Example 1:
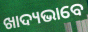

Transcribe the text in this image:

ଖାଦ୍ୟଭାବେ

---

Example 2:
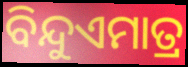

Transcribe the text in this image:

ବିନ୍ଦୁଏମାତ୍ର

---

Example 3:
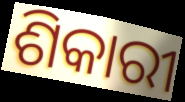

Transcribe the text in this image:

ଶିକାରୀ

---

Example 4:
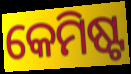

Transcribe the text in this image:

କେମିଷ୍ଟ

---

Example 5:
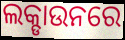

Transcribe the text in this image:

ଲକ୍ଡାଉନରେ